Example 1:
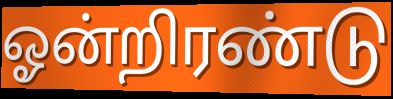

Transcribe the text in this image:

ஓன்றிரண்டு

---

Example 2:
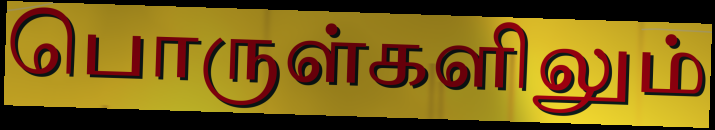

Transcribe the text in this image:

பொருள்களிலும்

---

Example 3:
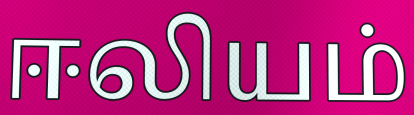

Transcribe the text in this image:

ஈலியம்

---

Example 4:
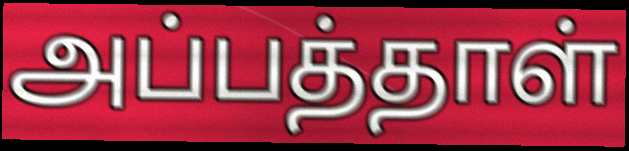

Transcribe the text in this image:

அப்பத்தாள்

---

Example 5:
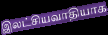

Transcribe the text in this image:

இலட்சியவாதியாக